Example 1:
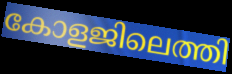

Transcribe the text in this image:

കോളജിലെത്തി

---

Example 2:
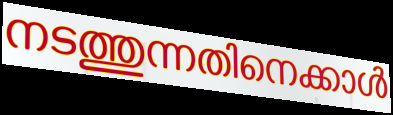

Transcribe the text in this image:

നടത്തുന്നതിനെക്കാൾ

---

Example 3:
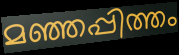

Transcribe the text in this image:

മഞ്ഞപ്പിത്തം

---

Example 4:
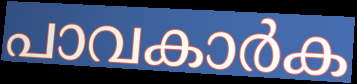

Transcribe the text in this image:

പാവകാർക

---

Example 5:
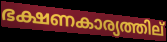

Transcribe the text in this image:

ഭക്ഷണകാര്യത്തില്